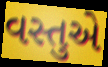
વસ્તુએ